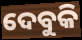
ଦେବୁକି